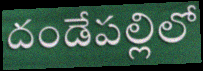
దండేపల్లిలో